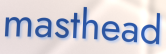
masthead